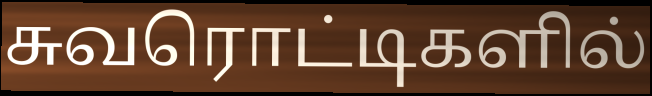
சுவரொட்டிகளில்